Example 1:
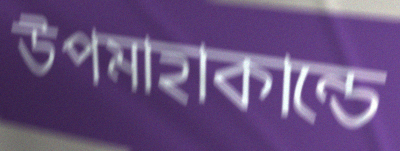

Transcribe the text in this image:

উপমাহাকান্ডে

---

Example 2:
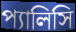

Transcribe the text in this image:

প্যালিসি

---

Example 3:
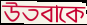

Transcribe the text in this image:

উতবাকে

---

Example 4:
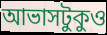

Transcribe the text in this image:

আভাসটুকুও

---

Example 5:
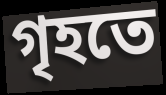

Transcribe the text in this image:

গৃহতে